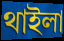
থাইলা